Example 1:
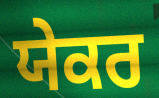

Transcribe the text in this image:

ਯੇਕਰ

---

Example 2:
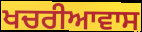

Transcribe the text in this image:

ਖਚਰੀਆਵਾਸ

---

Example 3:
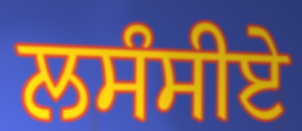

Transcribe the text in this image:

ਲਸੰਸੀਏ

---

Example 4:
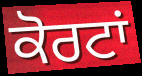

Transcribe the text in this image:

ਕੋਰਟਾਂ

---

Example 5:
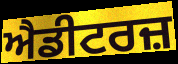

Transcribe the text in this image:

ਐਡੀਟਰਜ਼